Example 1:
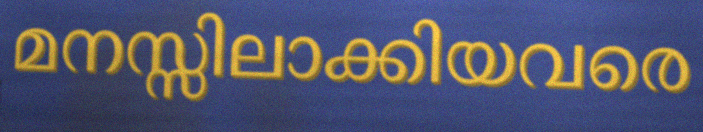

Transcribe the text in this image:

മനസ്സിലാക്കിയവരെ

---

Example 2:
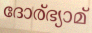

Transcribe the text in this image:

ദോര്ഭ്യാമ്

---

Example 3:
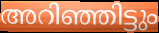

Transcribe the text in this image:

അറിഞ്ഞിട്ടും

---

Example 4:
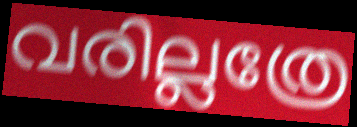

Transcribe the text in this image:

വരില്ലത്രേ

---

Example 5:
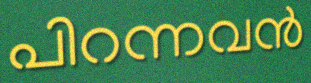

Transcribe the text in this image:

പിറന്നവൻ